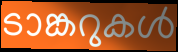
ടാങ്കറുകൾ